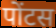
पोंटस